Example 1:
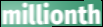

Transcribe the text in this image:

millionth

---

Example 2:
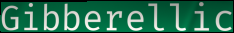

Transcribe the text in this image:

Gibberellic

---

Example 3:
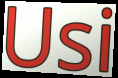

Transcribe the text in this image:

Usi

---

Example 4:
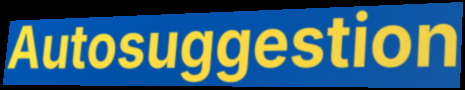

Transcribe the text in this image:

Autosuggestion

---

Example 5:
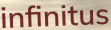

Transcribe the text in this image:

infinitus